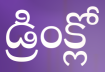
డ్రింక్లో